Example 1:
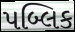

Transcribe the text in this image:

પબ્લિક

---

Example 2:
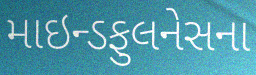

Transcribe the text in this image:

માઇન્ડફુલનેસના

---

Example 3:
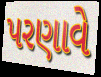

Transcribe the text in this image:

પરણાવે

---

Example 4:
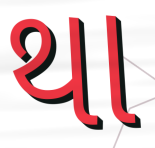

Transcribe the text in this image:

થા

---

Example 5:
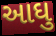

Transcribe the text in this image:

આઘુ